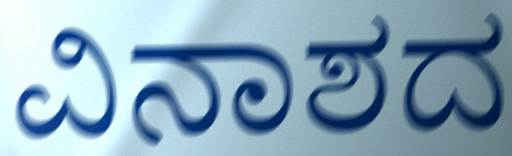
ವಿನಾಶದ